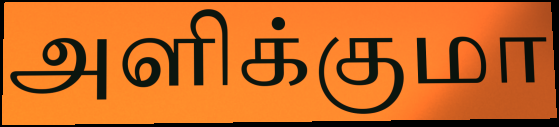
அளிக்குமா